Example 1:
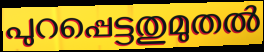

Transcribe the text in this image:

പുറപ്പെട്ടതുമുതൽ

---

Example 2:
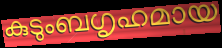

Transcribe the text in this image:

കുടുംബഗൃഹമായ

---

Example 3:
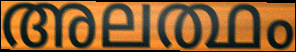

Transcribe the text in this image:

അലത്ഥം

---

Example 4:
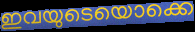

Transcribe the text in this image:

ഇവയുടെയൊക്കെ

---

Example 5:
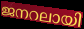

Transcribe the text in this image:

ജനറലായി